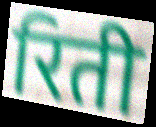
रिती